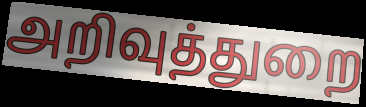
அறிவுத்துறை